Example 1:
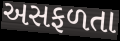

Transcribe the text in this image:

અસફળતા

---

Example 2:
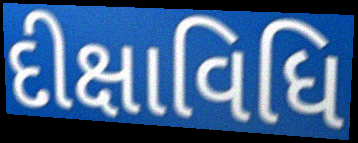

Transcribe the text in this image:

દીક્ષાવિધિ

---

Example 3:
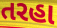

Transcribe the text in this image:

તરહા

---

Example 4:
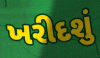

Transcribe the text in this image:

ખરીદશું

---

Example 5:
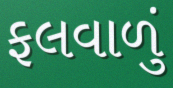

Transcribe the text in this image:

ફલવાળું